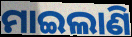
ମାଇଲାଣି